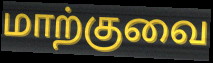
மாற்குவை